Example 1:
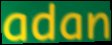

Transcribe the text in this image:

adan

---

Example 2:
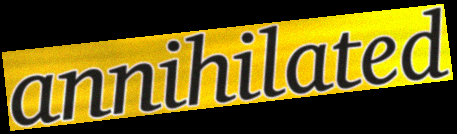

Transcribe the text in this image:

annihilated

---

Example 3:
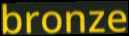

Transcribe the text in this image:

bronze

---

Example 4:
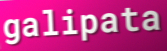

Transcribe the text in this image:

galipata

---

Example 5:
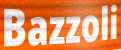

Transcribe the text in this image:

Bazzoli